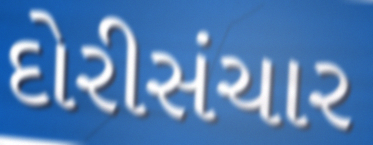
દોરીસંચાર